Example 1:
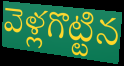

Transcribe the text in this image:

వెళ్లగొట్టిన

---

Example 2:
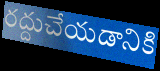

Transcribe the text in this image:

రద్దుచేయడానికి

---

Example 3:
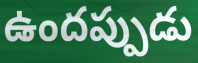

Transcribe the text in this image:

ఉందప్పుడు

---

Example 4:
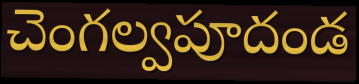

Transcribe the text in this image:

చెంగల్వపూదండ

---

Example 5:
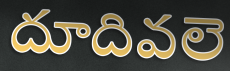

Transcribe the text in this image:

దూదివలె